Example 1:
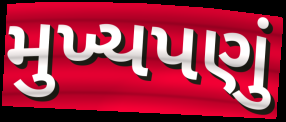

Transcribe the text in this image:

મુખ્યપણું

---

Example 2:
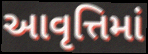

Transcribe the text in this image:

આવૃત્તિમાં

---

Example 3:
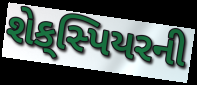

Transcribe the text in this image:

શેક્‌સ્પિયરની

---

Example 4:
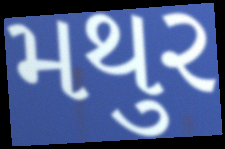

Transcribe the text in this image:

મથુર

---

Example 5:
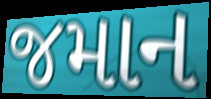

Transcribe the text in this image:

જમાન